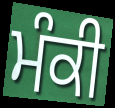
ਮੰਕੀ